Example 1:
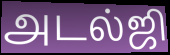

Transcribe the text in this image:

அடல்ஜி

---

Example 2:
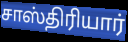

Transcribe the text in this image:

சாஸ்திரியார்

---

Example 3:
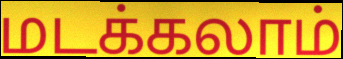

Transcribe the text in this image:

மடக்கலாம்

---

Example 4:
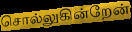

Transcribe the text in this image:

சொல்லுகின்றேன்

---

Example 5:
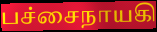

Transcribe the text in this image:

பச்சைநாயகி